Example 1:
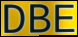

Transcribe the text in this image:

DBE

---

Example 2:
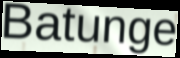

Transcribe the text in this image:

Batunge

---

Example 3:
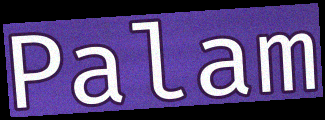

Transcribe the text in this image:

Palam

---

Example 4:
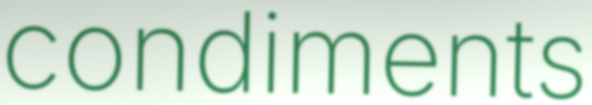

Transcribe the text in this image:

condiments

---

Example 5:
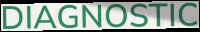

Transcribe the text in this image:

DIAGNOSTIC